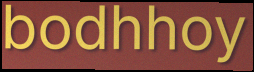
bodhhoy